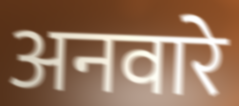
अनवारे